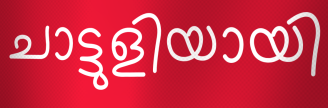
ചാട്ടുളിയായി